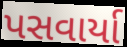
પસવાર્યા